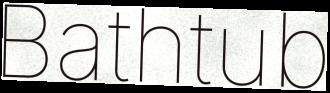
Bathtub